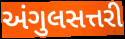
અંગુલસત્તરી